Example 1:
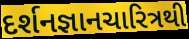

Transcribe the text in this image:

દર્શનજ્ઞાનચારિત્રથી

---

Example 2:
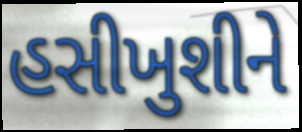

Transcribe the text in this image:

હસીખુશીને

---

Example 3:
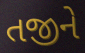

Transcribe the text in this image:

તજીને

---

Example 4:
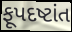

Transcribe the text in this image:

ફૂપદષ્ટાંત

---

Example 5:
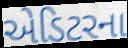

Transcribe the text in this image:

એડિટરના